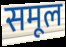
समूल